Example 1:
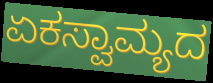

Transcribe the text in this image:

ಏಕಸ್ವಾಮ್ಯದ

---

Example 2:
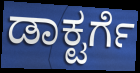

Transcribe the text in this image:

ಡಾಕ್ಟರ್ಗೆ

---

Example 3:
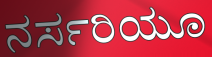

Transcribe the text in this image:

ನರ್ಸರಿಯೂ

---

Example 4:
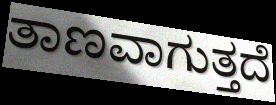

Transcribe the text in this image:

ತಾಣವಾಗುತ್ತದೆ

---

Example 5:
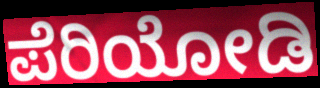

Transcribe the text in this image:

ಪೆರಿಯೋಡಿ